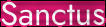
Sanctus